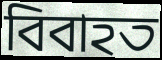
বিবাহত